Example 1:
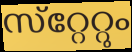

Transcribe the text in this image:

സ്‌റ്റേറ്റും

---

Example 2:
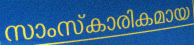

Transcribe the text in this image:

സാംസ്‌കാരികമായ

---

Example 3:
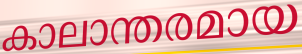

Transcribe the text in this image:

കാലാന്തരമായ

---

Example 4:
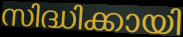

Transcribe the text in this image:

സിദ്ധിക്കായി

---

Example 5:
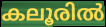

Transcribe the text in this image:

കലൂരിൽ